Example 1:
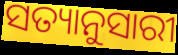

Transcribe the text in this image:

ସତ୍ୟାନୁସାରୀ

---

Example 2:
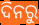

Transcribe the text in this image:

ଦିନରୁ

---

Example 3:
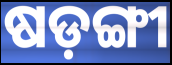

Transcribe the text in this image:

ଷଡ଼ଙ୍ଗୀ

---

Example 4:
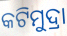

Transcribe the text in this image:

କଟିମୁଦ୍ରା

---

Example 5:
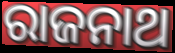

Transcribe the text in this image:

ରାଜନାଥ